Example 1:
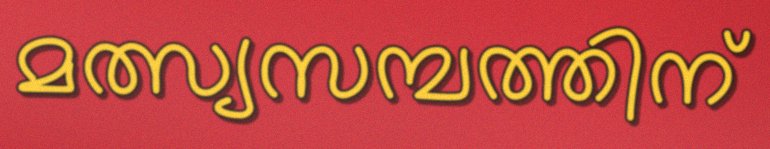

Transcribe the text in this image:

മത്സ്യസമ്പത്തിന്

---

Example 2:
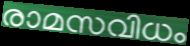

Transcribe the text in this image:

രാമസവിധം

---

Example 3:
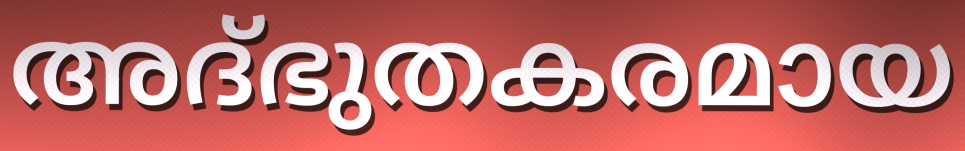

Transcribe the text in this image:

അദ്ഭുതകരമായ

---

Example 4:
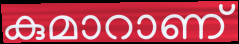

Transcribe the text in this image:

കുമാറാണ്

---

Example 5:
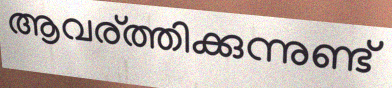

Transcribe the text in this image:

ആവര്ത്തിക്കുന്നുണ്ട്